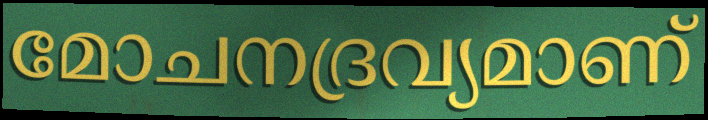
മോചനദ്രവ്യമാണ്